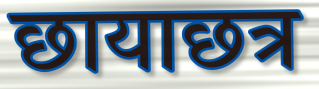
छायाछत्र